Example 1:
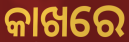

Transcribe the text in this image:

କାଖରେ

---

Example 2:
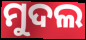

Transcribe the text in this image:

ମୁଦଲ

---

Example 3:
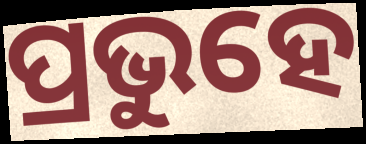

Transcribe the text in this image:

ପ୍ରଭୁହେ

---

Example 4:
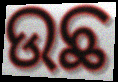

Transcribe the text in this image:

ଉଛ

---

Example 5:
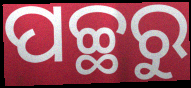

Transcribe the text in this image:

ପଚ୍ଛରୁ